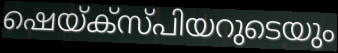
ഷെയ്ക്സ്പിയറുടെയും